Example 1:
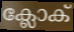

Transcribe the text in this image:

ക്ലോക്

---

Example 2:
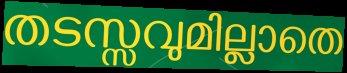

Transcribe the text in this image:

തടസ്സവുമില്ലാതെ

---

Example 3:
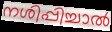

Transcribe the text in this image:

നശിപ്പിച്ചാൽ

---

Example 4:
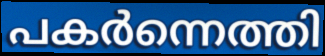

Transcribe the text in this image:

പകർന്നെത്തി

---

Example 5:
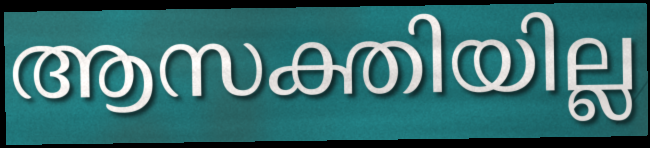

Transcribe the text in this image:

ആസക്തിയില്ല